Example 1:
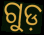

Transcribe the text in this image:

ଗୁଡ଼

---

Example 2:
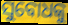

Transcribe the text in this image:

ସୁବୋଧକୁ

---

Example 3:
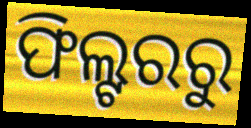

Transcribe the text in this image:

ଫିଲ୍ଟରରୁ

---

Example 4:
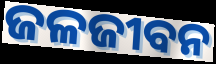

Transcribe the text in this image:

ଜଳଜୀବନ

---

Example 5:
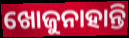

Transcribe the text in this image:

ଖୋଜୁନାହାନ୍ତି